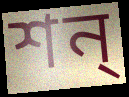
শন্